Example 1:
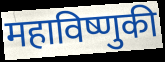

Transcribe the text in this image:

महाविष्णुकी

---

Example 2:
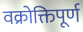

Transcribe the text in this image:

वक्रोक्तिपूर्ण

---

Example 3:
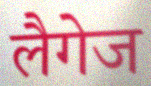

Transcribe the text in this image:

लैगेज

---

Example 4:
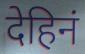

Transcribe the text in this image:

देहिनं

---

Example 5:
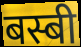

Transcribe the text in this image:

बस्बी